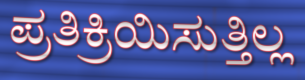
ಪ್ರತಿಕ್ರಿಯಿಸುತ್ತಿಲ್ಲ